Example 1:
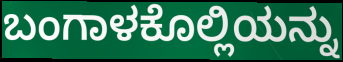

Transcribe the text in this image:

ಬಂಗಾಳಕೊಲ್ಲಿಯನ್ನು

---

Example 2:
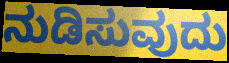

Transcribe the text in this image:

ನುಡಿಸುವುದು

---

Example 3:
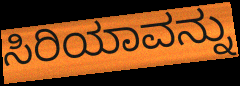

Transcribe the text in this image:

ಸಿರಿಯಾವನ್ನು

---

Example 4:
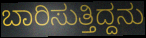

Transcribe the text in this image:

ಬಾರಿಸುತ್ತಿದ್ದನು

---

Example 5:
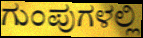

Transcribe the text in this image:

ಗುಂಪುಗಳಲ್ಲಿ